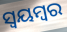
ସ୍ଵୟମ୍ବର